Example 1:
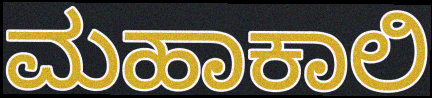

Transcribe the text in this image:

ಮಹಾಕಾಲಿ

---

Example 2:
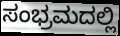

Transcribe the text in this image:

ಸಂಭ್ರಮದಲ್ಲಿ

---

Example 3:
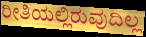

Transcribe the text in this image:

ರೀತಿಯಲ್ಲಿರುವುದಿಲ್ಲ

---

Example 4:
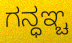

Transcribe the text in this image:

ಗನ್ಧಞ್ಚ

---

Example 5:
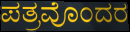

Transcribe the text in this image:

ಪತ್ರವೊಂದರ